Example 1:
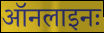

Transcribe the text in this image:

ऑनलाइनः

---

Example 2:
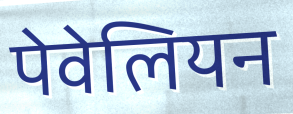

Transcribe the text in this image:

पेवेलियन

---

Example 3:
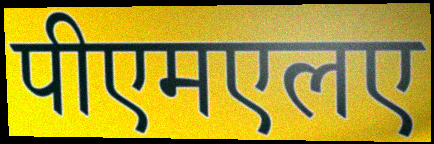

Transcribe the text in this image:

पीएमएलए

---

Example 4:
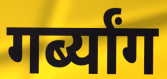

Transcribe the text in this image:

गर्ब्यांग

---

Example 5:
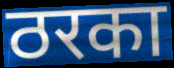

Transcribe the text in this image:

ठरका